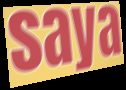
saya